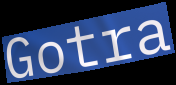
Gotra